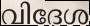
വിദേശ